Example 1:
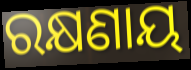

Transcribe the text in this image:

ରକ୍ଷଣାୟ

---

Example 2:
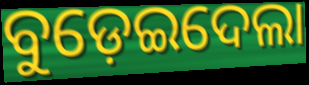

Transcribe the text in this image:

ବୁଡ଼େଇଦେଲା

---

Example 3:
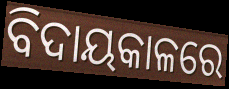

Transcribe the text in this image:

ବିଦାୟକାଳରେ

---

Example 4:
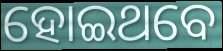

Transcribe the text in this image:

ହୋଇଥବେ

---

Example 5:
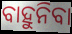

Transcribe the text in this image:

ବାହୁନିବା